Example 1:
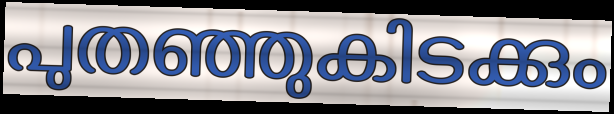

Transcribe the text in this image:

പുതഞ്ഞുകിടക്കും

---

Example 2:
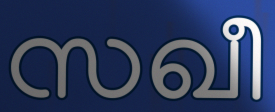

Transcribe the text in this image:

സഖീ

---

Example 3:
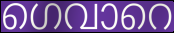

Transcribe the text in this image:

ഗെവാറെ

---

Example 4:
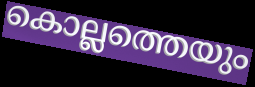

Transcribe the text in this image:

കൊല്ലത്തെയും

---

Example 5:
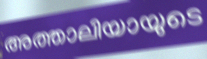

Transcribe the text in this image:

അത്താലിയായുടെ